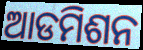
ଆଡମିଶନ